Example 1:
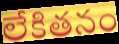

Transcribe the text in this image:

లేకితనం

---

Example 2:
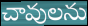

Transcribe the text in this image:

చావులను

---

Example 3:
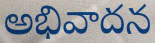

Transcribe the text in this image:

అభివాదన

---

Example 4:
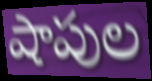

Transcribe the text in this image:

షాపుల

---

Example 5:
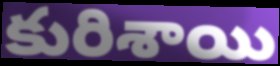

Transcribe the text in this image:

కురిశాయి